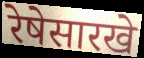
रेषेसारखे